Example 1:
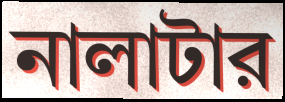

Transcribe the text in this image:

নালাটার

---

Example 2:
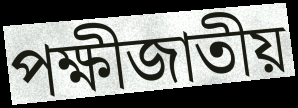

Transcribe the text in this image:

পক্ষীজাতীয়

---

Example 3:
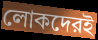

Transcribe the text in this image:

লোকদেরই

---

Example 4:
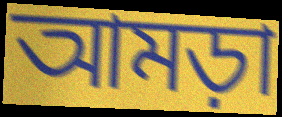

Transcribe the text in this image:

আমড়া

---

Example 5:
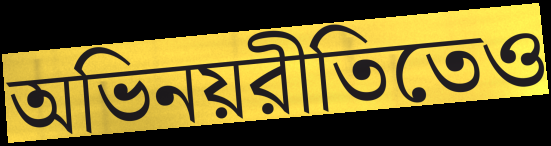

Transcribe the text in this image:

অভিনয়রীতিতেও